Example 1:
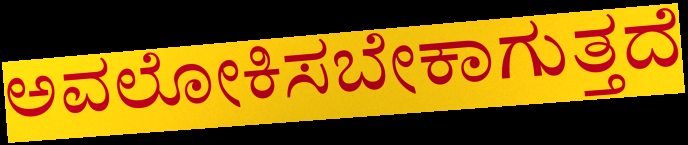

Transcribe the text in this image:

ಅವಲೋಕಿಸಬೇಕಾಗುತ್ತದೆ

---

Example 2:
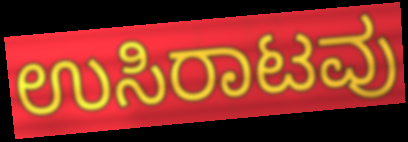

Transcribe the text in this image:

ಉಸಿರಾಟವು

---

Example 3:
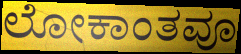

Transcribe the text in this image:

ಲೋಕಾಂತವೂ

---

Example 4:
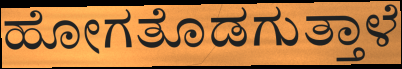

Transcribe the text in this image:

ಹೋಗತೊಡಗುತ್ತಾಳೆ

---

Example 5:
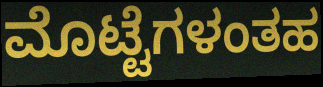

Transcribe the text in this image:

ಮೊಟ್ಟೆಗಳಂತಹ